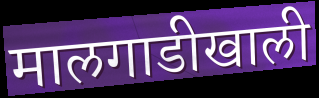
मालगाडीखाली